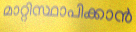
മാറ്റിസ്ഥാപിക്കാൻ